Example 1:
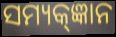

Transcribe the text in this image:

ସମ୍ୟକ୍‌ଜ୍ଞାନ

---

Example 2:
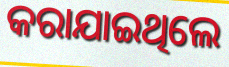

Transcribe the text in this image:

କରାଯାଇଥିଲେ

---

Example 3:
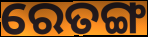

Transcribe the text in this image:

ରେତଙ୍ଗ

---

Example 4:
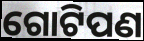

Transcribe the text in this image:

ଗୋଟିପଣ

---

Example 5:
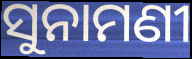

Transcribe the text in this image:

ସୁନାମଣୀ